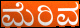
ಮೆರಿವ